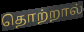
தொற்றால்